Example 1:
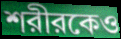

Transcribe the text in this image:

শরীরকেও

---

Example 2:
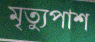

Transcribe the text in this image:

মৃত্যুপাশ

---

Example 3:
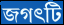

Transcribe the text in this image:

জগৎটি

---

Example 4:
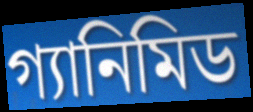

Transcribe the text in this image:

গ্যানিমিড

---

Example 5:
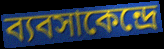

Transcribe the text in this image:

ব্যবসাকেন্দ্রে